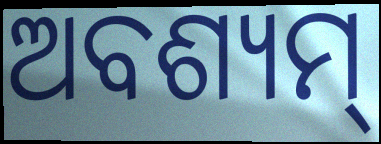
ଅବଶ୍ୟମ୍